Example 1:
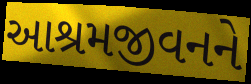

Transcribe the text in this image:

આશ્રમજીવનને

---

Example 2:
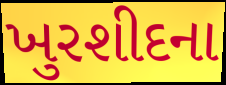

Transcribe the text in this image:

ખુરશીદના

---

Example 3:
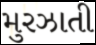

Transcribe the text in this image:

મુરઝાતી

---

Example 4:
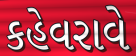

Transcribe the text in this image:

કહેવરાવે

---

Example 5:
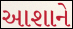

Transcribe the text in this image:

આશાને